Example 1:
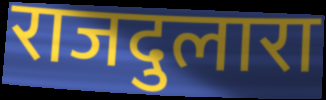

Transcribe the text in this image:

राजदुलारा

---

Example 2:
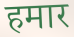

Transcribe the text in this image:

हमार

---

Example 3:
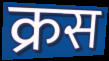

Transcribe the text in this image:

क्रस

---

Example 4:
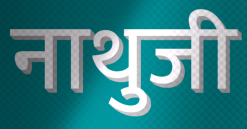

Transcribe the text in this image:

नाथुजी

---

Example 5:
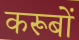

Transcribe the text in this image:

करूबों